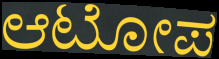
ಆಟೋಪ